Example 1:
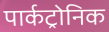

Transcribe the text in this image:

पार्कट्रोनिक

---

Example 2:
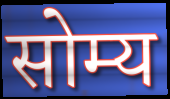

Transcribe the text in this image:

सोम्य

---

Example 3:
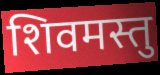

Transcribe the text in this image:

शिवमस्तु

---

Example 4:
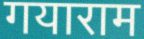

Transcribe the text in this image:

गयाराम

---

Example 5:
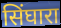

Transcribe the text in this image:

सिंघारा